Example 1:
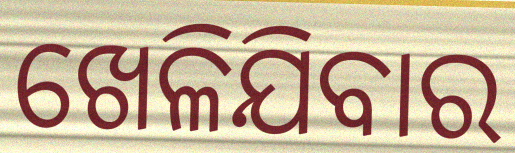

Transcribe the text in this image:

ଖେଳିଯିବାର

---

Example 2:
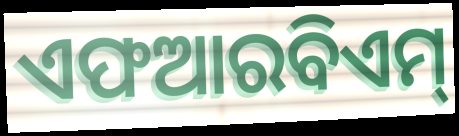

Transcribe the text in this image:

ଏଫଆରବିଏମ୍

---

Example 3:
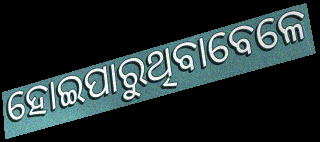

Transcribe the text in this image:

ହୋଇପାରୁଥିବାବେଳେ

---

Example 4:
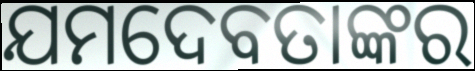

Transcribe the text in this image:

ଯମଦେବତାଙ୍କର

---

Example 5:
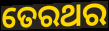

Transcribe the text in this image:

ତେରଥର